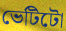
ভেটিটো